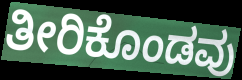
ತೀರಿಕೊಂಡವು